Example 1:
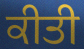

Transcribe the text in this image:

ਕੀਤੀ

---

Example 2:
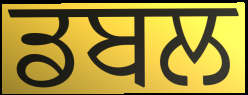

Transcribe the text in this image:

ਡਬਲ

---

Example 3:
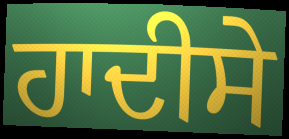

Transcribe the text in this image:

ਹਾਦੀਸੇ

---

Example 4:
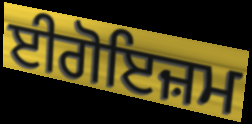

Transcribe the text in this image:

ਈਗੋਇਜ਼ਮ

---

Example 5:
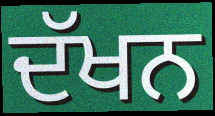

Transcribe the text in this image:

ਦੱਖਨ